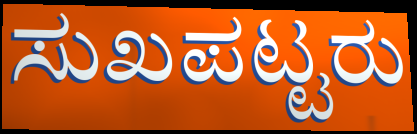
ಸುಖಪಟ್ಟರು